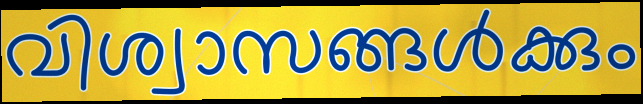
വിശ്വാസങ്ങൾക്കും